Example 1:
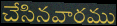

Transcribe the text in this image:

చేసినవారము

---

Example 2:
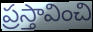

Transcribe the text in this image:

ప్రస్తావించి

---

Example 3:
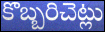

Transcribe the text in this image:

కొబ్బరిచెట్లు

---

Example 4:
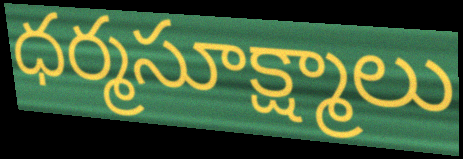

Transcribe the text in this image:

ధర్మసూక్ష్మాలు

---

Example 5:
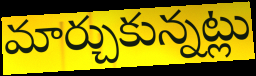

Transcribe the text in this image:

మార్చుకున్నట్లు